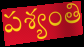
పశ్యంతి